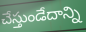
చేస్తుండేదాన్ని